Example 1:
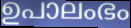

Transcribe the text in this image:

ഉപാലംഭം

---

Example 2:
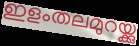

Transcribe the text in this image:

ഇളംതലമുറയ്ക്കു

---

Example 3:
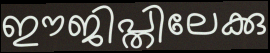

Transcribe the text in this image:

ഈജിപ്തിലേക്കു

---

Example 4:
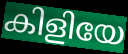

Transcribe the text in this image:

കിളിയേ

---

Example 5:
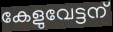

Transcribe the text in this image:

കേളുവേട്ടന്